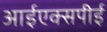
आईएक्सपीई